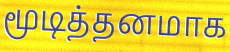
மூடித்தனமாக